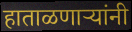
हाताळणाऱ्यांनी